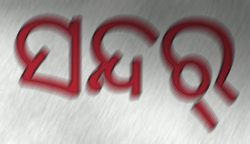
ସନ୍ଦର୍